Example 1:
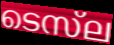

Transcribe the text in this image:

ടെസ്‌ല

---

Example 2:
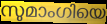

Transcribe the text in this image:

സുമാംഗിയെ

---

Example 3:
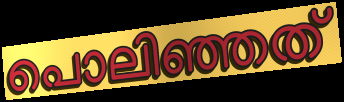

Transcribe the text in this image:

പൊലിഞ്ഞത്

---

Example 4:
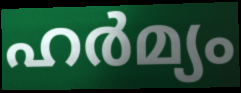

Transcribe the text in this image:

ഹർമ്യം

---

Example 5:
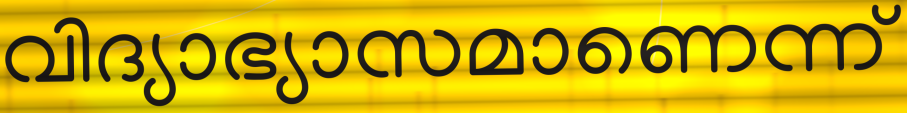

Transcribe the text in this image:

വിദ്യാഭ്യാസമാണെന്ന്